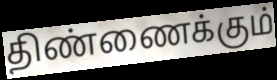
திண்ணைக்கும்